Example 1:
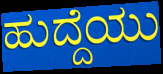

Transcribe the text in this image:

ಹುದ್ದೆಯು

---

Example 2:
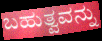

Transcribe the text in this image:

ಬಹುತ್ವವನ್ನು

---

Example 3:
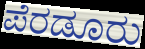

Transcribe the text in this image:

ಪೆರಡೂರು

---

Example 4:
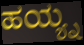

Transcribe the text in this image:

ಹಯ್ಯ್ನ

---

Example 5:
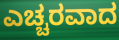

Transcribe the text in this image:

ಎಚ್ಚರವಾದ